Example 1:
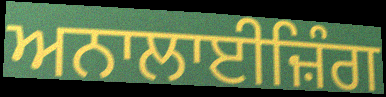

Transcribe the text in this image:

ਅਨਾਲਾਈਜ਼ਿੰਗ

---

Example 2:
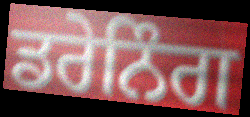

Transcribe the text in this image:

ਡਰੇਨਿੰਗ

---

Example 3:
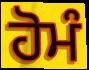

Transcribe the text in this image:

ਹੋਮੰ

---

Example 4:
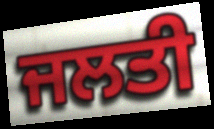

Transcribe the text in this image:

ਜਲਤੀ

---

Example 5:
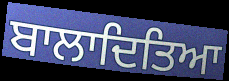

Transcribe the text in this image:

ਬਾਲਾਦਿਤਿਆ